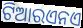
ଟିଆରଏନଏ